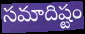
సమాదిష్టం